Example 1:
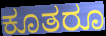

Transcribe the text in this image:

ಕೂತರೂ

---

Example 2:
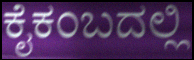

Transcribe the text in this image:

ಕೈಕಂಬದಲ್ಲಿ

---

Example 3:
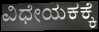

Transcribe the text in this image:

ವಿಧೇಯಕಕ್ಕೆ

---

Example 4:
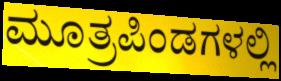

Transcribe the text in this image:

ಮೂತ್ರಪಿಂಡಗಳಲ್ಲಿ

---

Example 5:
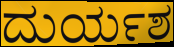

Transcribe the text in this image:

ದುರ್ಯಶ